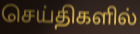
செய்திகளில்